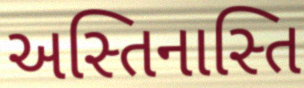
અસ્તિનાસ્તિ